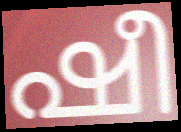
ഷീ